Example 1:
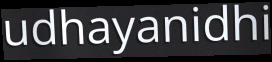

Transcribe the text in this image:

udhayanidhi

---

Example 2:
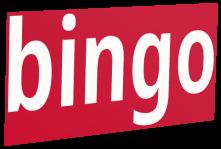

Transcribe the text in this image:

bingo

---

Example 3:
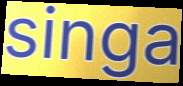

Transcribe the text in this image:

singa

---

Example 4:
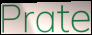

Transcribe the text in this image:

Prate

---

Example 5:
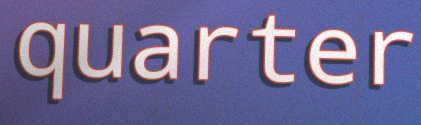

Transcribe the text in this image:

quarter